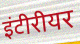
इंटीरीयर